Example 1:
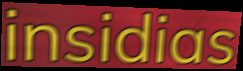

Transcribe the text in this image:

insidias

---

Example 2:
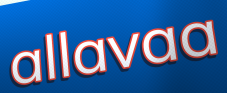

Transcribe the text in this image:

allavaa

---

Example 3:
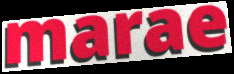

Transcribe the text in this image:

marae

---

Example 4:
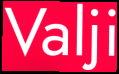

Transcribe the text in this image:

Valji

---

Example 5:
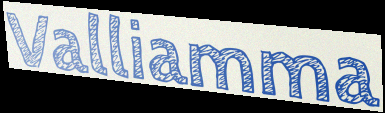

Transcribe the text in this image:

Valliamma